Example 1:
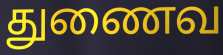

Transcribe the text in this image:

துணைவ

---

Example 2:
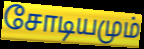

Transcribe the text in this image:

சோடியமும்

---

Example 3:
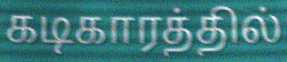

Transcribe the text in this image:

கடிகாரத்தில்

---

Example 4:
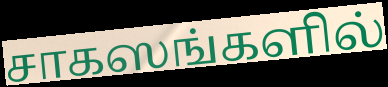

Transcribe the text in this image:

சாகஸங்களில்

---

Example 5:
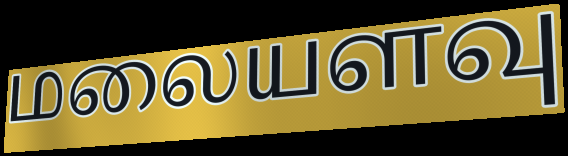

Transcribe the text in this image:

மலையளவு